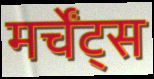
मर्चेंट्स